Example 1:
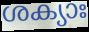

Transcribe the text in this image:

ശക്യാഃ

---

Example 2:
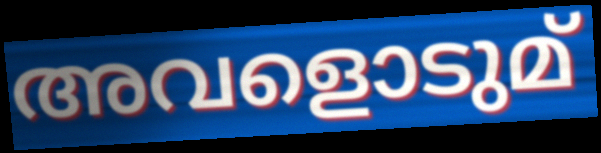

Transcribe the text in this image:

അവളൊടുമ്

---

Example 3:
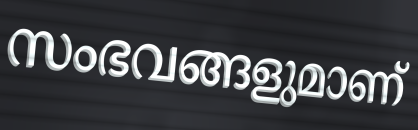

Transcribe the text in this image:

സംഭവങ്ങളുമാണ്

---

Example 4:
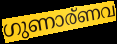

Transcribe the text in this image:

ഗുണാര്ണവ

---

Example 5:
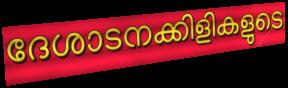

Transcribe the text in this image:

ദേശാടനക്കിളികളുടെ